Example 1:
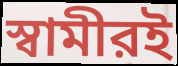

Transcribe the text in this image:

স্বামীরই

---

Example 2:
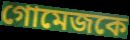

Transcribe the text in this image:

গোমেজকে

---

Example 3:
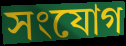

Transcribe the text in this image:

সংযোগ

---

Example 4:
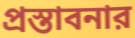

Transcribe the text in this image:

প্রস্তাবনার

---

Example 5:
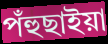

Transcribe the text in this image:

পঁহুছাইয়া